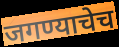
जगण्याचेच